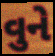
વુને